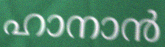
ഹാനാൻ